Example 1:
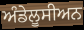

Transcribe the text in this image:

ਅੰਡੇਲੂਸੀਅਨ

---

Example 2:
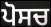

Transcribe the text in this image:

ਪੋਸਚ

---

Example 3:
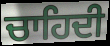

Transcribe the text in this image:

ਚਾਹਿਦੀ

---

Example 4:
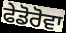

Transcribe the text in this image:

ਫੇਡੋਰੋਵਾ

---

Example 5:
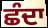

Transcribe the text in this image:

ਛੰਦਾ